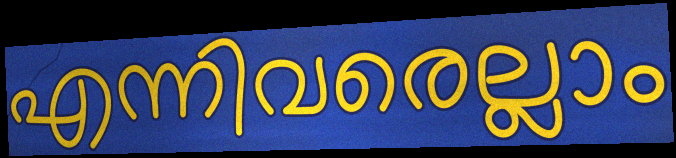
എന്നിവരെല്ലാം